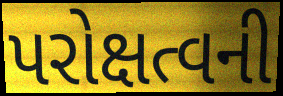
પરોક્ષત્વની